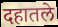
दहातले